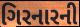
ગિરનારની